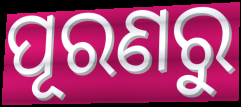
ପୂରଣରୁ